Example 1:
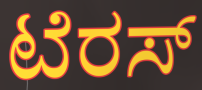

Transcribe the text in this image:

ಟೆರಸ್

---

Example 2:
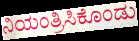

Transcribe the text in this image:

ನಿಯಂತ್ರಿಸಿಕೊಂಡು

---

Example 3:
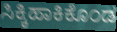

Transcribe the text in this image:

ಸಿಕ್ಕಿಹಾಕಿಕೊಂಡ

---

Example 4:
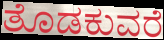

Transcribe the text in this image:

ತೊಡಕುವರೆ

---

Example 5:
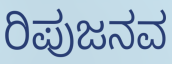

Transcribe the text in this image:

ರಿಪುಜನವ